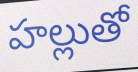
హల్లుతో